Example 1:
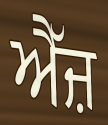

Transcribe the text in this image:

ਐੱਜ਼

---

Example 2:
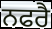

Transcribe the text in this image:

ਨਫਰੈ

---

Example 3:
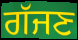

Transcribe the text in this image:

ਗੱਜਣ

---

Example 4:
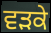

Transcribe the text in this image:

ਵੜਕੇ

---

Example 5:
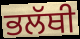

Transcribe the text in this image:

ਭਲੱਥੀ